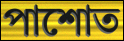
পাশোত